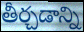
తీర్చడాన్ని